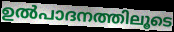
ഉൽപാദനത്തിലൂടെ